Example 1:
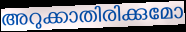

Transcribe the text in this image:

അറുക്കാതിരിക്കുമോ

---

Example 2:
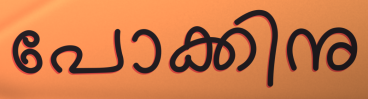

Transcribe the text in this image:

പോക്കിനു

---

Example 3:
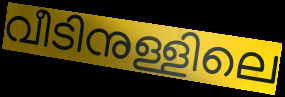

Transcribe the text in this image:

വീടിനുള്ളിലെ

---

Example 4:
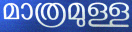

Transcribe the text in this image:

മാത്രമുള്ള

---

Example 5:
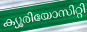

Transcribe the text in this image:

ക്യൂരിയോസിറ്റി